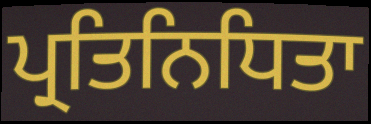
ਪ੍ਰਤਿਨਿਧਿਤਾ